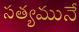
సత్యమునే